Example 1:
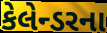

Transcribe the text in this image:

કેલેન્ડરના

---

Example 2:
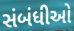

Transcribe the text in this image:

સંબંધીઓ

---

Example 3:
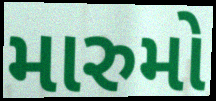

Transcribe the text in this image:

મારુમો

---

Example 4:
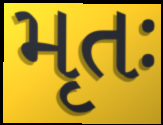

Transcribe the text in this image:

મૃતઃ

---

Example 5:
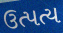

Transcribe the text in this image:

ઉત્પત્ય